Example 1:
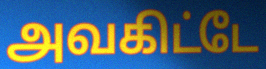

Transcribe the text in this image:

அவகிட்டே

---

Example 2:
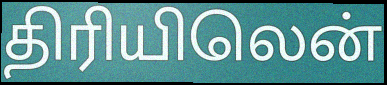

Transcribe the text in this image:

திரியிலென்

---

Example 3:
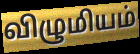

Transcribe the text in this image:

விழுமியம்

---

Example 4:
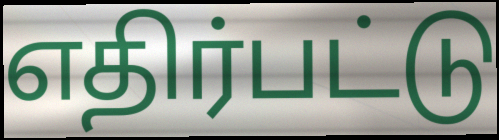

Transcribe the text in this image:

எதிர்பட்டு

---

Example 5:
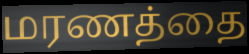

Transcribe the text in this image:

மரணத்தை